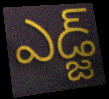
ఎడ్జ్